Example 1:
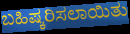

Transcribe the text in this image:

ಬಹಿಷ್ಕರಿಸಲಾಯಿತು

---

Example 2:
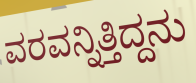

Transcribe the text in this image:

ವರವನ್ನಿತ್ತಿದ್ದನು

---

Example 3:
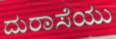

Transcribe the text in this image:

ದುರಾಸೆಯು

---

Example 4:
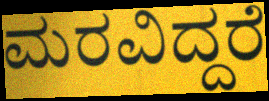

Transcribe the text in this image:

ಮರವಿದ್ದರೆ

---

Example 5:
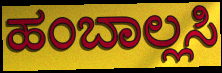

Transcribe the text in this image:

ಹಂಬಾಲ್ಲಸಿ